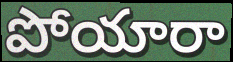
పోయారా